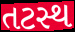
તટસ્થ